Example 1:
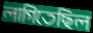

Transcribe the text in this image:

লাগিতেছিল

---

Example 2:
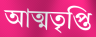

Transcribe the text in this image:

আত্মতৃপ্তি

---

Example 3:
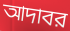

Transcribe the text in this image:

আদাবর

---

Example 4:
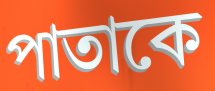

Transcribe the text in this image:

পাতাকে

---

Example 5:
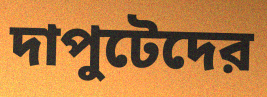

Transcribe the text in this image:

দাপুটেদের